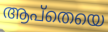
ആപ്തെയെ